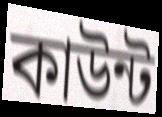
কাউন্ট